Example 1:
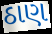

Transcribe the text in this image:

ઠાણ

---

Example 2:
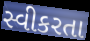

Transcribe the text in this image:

સ્વીકરતા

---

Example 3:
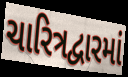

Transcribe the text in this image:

ચારિત્રદ્વારમાં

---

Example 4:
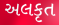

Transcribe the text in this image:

અલકૃત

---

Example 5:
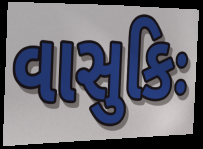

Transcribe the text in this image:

વાસુકિઃ